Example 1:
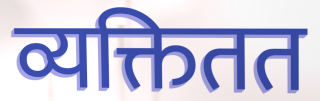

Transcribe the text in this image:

व्यक्तितत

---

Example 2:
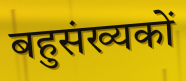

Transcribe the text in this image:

बहुसंख्यकों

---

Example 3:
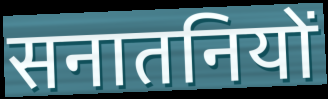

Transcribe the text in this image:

सनातनियों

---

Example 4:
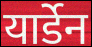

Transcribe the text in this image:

यार्डेन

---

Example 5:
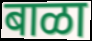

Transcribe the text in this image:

बाळा